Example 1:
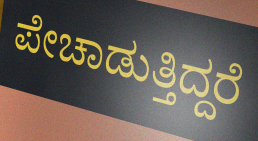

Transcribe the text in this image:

ಪೇಚಾಡುತ್ತಿದ್ದರೆ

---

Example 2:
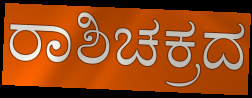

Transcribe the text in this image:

ರಾಶಿಚಕ್ರದ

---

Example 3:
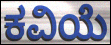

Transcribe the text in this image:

ಕವಿಯೆ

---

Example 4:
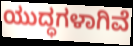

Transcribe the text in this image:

ಯುದ್ಧಗಳಾಗಿವೆ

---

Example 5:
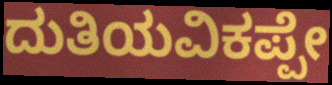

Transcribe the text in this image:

ದುತಿಯವಿಕಪ್ಪೇ